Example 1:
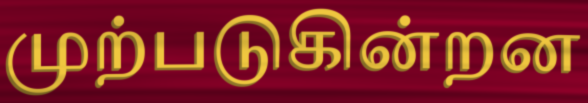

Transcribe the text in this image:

முற்படுகின்றன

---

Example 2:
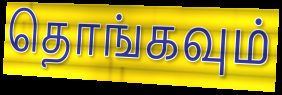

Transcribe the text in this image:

தொங்கவும்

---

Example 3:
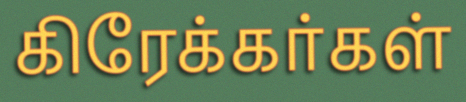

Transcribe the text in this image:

கிரேக்கர்கள்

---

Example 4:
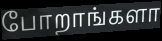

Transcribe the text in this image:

போறாங்களா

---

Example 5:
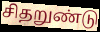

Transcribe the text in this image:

சிதறுண்டு